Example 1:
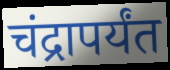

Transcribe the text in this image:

चंद्रापर्यंत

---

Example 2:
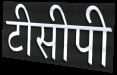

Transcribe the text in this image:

टीसीपी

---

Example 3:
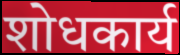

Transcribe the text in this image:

शोधकार्य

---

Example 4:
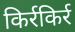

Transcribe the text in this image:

किर्रकिर्र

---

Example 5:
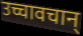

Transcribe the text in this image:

उच्चावचान्